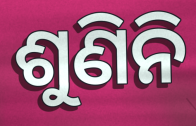
ଶୁଣିନି